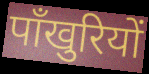
पाँखुरियों